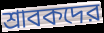
শ্রাবকদের